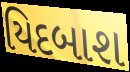
યિદબાશ